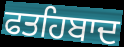
ਫਤਹਿਬਾਦ